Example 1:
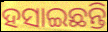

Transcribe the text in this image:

ହସାଇଛନ୍ତି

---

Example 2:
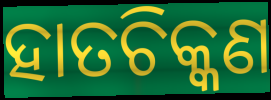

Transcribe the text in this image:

ହାତଚିକ୍କଣ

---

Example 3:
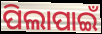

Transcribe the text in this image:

ପିଲାପାଇଁ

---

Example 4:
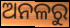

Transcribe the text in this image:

ଅନଳରୁ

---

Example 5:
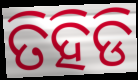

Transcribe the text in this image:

ତିହିଡି